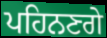
ਪਹਿਨਣਗੇ